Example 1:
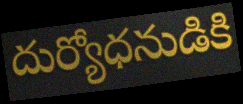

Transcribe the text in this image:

దుర్యోధనుడికి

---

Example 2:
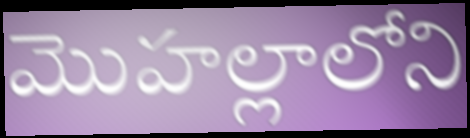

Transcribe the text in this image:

మొహల్లాలోని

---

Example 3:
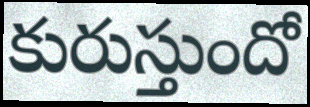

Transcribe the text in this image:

కురుస్తుందో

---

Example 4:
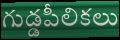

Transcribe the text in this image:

గుడ్డపీలికలు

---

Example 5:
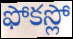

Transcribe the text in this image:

ఫోకస్లో